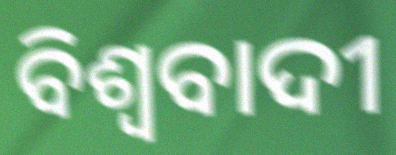
ବିଶ୍ବବାଦୀ